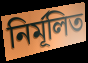
নির্মূলিত